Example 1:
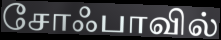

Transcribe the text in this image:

சோஃபாவில்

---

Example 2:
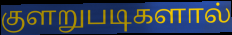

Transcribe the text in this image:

குளறுபடிகளால்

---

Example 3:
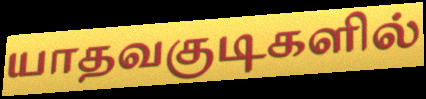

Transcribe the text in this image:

யாதவகுடிகளில்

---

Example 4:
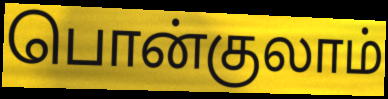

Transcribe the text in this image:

பொன்குலாம்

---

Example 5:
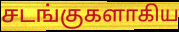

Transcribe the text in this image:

சடங்குகளாகிய